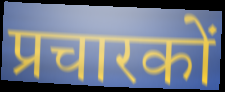
प्रचारकों